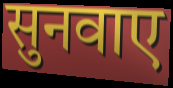
सुनवाए